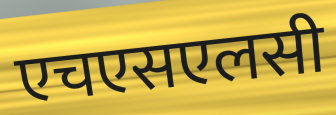
एचएसएलसी